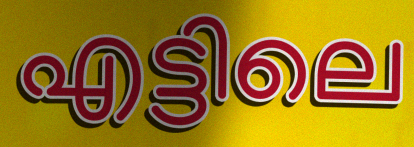
എട്ടിലെ